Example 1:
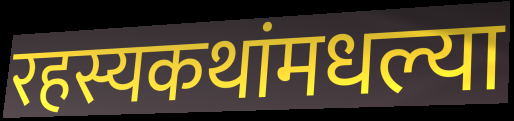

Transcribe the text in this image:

रहस्यकथांमधल्या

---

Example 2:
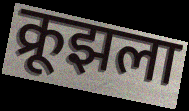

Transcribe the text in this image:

क्रूझला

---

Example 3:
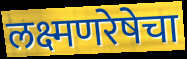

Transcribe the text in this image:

लक्ष्मणरेषेचा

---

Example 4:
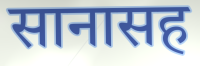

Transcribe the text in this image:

सानासह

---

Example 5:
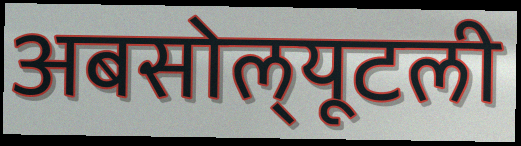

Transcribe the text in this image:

अबसोल्यूटली